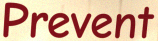
Prevent